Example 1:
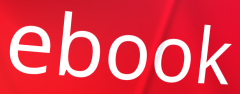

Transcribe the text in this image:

ebook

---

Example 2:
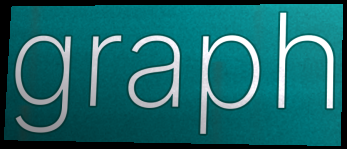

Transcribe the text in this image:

graph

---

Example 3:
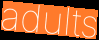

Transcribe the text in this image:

adults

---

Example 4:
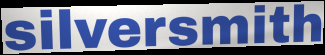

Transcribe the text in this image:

silversmith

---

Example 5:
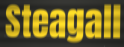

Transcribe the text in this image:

Steagall